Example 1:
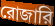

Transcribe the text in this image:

রোজারি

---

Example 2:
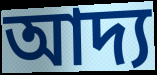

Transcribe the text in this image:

আদ্য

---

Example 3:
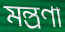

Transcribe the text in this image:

মন্ত্রণা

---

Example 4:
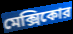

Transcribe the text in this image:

মেক্সিকোর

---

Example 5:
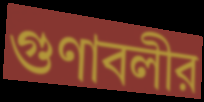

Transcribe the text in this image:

গুণাবলীর